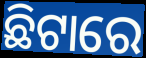
ଛିଟାରେ